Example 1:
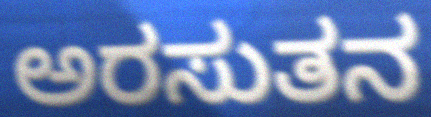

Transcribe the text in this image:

ಅರಸುತನ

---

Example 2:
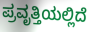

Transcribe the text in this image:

ಪ್ರವೃತ್ತಿಯಲ್ಲಿದೆ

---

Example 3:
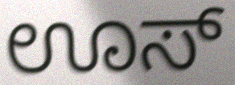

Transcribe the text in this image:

ಊಸ್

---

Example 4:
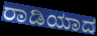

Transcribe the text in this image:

ರಾಡಿಯಾದ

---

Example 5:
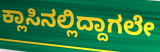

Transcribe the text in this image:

ಕ್ಲಾಸಿನಲ್ಲಿದ್ದಾಗಲೇ